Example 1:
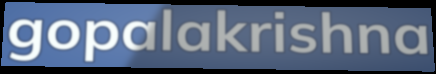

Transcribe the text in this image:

gopalakrishna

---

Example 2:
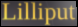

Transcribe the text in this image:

Lilliput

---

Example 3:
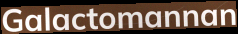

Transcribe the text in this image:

Galactomannan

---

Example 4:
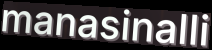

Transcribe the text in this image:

manasinalli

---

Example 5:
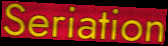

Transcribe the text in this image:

Seriation